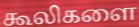
கூலிகளை